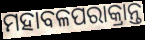
ମହାବଳପରାକ୍ରାନ୍ତ